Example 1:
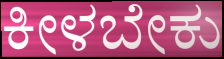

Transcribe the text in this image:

ಕೀಳಬೇಕು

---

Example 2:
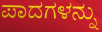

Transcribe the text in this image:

ಪಾದಗಳನ್ನು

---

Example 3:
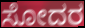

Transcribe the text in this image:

ಸೋದರ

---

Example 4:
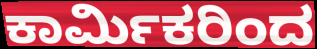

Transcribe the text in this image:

ಕಾರ್ಮಿಕರಿಂದ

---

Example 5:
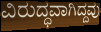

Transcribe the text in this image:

ವಿರುದ್ಧವಾಗಿದ್ದವು